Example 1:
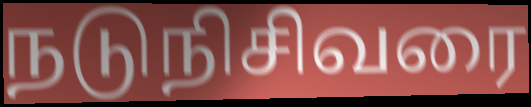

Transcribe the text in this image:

நடுநிசிவரை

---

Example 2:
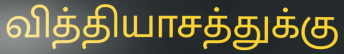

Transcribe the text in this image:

வித்தியாசத்துக்கு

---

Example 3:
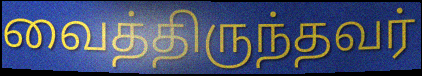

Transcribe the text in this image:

வைத்திருந்தவர்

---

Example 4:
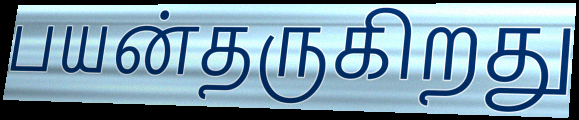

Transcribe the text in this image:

பயன்தருகிறது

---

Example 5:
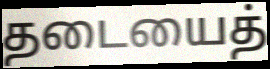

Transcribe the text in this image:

தடையைத்